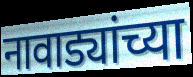
नावाड्यांच्या